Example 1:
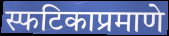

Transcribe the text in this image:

स्फटिकाप्रमाणे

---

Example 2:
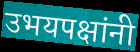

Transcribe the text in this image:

उभयपक्षांनी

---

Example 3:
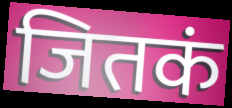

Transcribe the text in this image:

जितकं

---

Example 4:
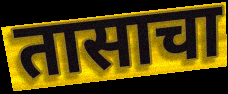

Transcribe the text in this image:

तासाचा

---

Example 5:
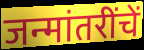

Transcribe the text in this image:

जन्मांतरींचें